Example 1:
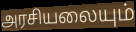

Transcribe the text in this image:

அரசியலையும்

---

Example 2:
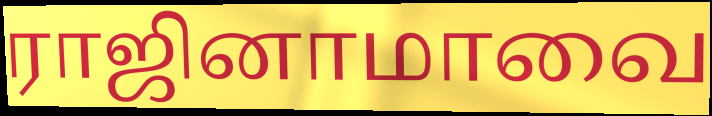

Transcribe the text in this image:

ராஜினாமாவை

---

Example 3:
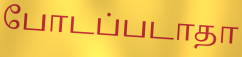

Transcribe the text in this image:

போடப்படாதா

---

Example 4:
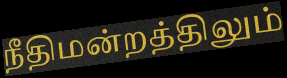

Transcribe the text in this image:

நீதிமன்றத்திலும்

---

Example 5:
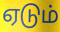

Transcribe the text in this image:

ஏடும்